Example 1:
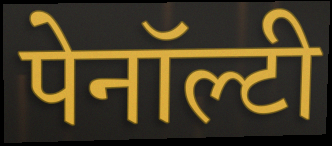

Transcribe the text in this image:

पेनॉल्टी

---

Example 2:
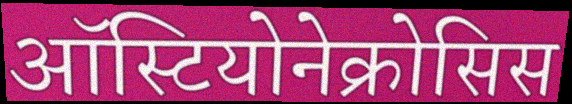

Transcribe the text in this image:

ऑस्टियोनेक्रोसिस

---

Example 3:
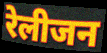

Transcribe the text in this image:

रेलीजन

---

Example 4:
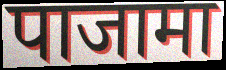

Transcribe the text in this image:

पाजामा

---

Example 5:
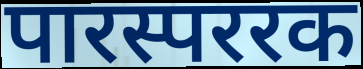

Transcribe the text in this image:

पारस्पररक